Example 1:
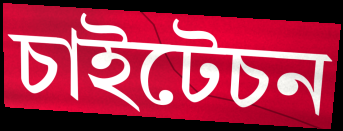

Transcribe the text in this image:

চাইটেচন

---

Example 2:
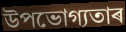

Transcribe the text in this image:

উপভোগ্যতাৰ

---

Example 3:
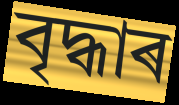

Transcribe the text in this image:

বৃদ্ধাৰ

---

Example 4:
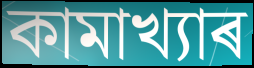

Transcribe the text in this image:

কামাখ্যাৰ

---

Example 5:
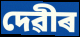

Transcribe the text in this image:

দেৱীৰ